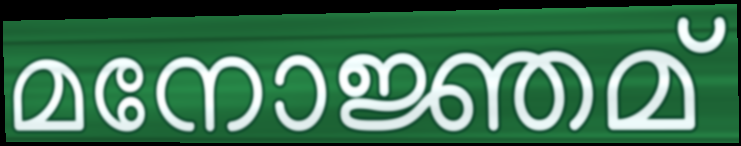
മനോജ്ഞമ്